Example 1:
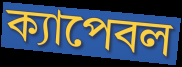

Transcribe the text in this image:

ক্যাপেবল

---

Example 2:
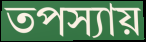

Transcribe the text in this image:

তপস্যায়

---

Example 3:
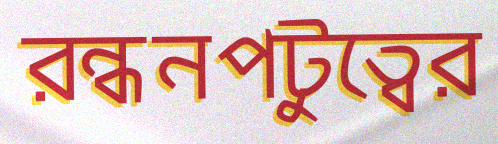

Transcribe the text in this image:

রন্ধনপটুত্বের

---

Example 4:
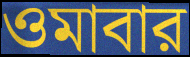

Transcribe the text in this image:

ওমাবার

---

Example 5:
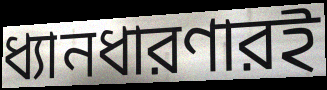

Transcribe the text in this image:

ধ্যানধারণারই